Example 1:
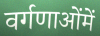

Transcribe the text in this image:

वर्गणाओंमें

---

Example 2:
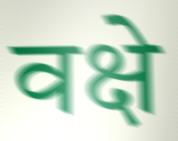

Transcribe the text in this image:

वक्षे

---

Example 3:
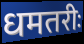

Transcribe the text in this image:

धमतरीः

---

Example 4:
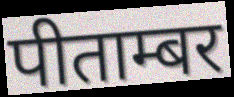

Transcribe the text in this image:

पीताम्बर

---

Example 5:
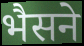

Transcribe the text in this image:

भैसने